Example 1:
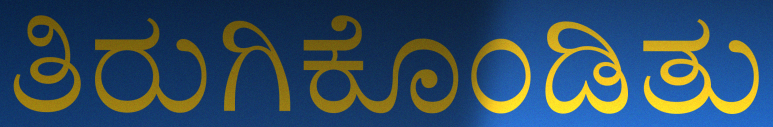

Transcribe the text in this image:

ತಿರುಗಿಕೊಂಡಿತು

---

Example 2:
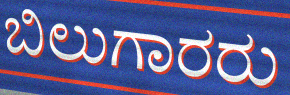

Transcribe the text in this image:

ಬಿಲುಗಾರರು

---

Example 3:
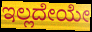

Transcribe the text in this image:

ಇಲ್ಲದೇಯೇ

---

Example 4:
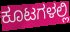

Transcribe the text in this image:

ಕೂಟಗಳಲ್ಲಿ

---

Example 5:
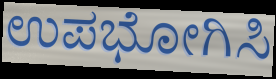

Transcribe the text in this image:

ಉಪಭೋಗಿಸಿ